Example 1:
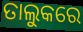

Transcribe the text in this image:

ତାଲୁକରେ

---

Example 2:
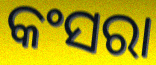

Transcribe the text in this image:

କଂସରା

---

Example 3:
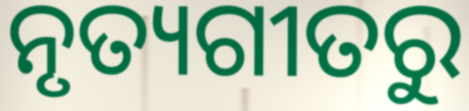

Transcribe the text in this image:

ନୃତ୍ୟଗୀତରୁ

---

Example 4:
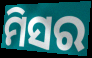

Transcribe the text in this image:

ମିସର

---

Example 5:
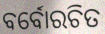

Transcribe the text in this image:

ବର୍ବୋରଚିତ